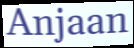
Anjaan